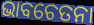
ଭାବଚେତନା